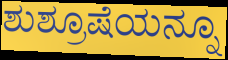
ಶುಶ್ರೂಷೆಯನ್ನೂ